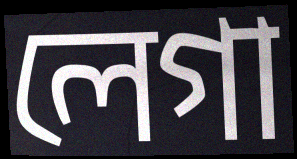
লেগা